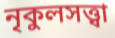
নৃকুলসত্ত্বা